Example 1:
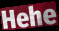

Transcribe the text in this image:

Hehe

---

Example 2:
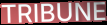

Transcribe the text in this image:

TRIBUNE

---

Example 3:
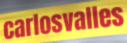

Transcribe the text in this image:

carlosvalles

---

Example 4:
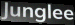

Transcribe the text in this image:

Junglee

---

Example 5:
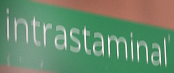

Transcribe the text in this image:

intrastaminal